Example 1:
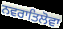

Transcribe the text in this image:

ਨਵਰਾਤਿਲੋਵਾ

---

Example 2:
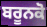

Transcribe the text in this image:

ਬਰੂਨਕੋ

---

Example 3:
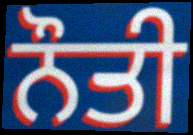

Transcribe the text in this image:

ਨੌਤੀ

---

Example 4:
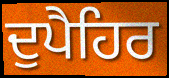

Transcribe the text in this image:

ਦੁਪੈਹਿਰ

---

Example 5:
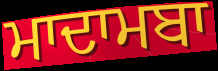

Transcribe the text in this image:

ਮਾਦਾਮਬਾ